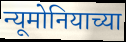
न्यूमोनियाच्या